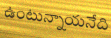
ఉంటున్నాయనేది